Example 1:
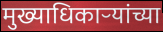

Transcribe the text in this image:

मुख्याधिकाऱ्यांच्या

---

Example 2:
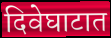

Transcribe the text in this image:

दिवेघाटात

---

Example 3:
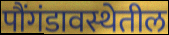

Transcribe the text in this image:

पौंगंडावस्थेतील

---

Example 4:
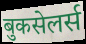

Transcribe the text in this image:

बुकसेलर्स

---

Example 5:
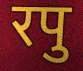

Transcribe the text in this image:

रपु